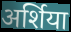
अर्शिया